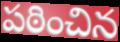
పఠించిన